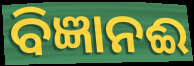
ବିଜ୍ଞାନଈ